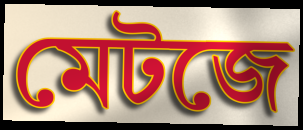
মেটজে